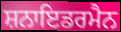
ਸ਼ਨਾਇਡਰਮੈਨ